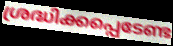
ശ്രദ്ധിക്കപ്പെടേണ്ട